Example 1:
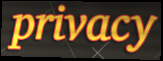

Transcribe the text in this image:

privacy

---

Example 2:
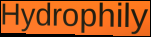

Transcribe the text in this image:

Hydrophily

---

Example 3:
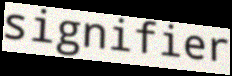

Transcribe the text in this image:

signifier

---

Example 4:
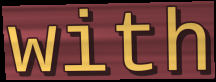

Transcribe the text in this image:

with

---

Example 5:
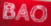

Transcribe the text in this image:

BAO